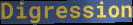
Digression